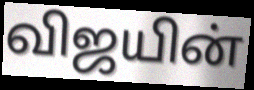
விஜயின்